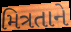
મિત્રતાને